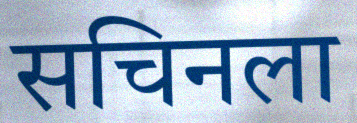
सचिनला